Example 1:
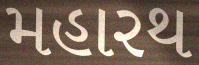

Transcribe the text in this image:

મહારથ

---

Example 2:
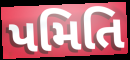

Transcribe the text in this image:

પમિતિ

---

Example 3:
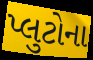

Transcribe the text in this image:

પ્લુટોના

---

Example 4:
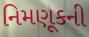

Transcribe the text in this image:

નિમણૂકની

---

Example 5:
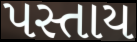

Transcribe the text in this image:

પસ્તાય